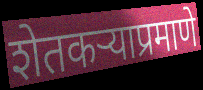
शेतकऱ्याप्रमाणे